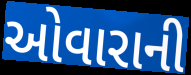
ઓવારાની